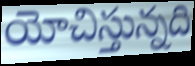
యోచిస్తున్నది